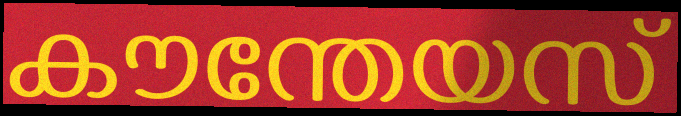
കൗന്തേയസ്